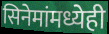
सिनेमांमध्येही